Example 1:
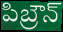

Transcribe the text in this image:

పిబ్రౌన్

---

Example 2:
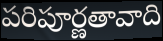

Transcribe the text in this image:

పరిపూర్ణతావాది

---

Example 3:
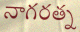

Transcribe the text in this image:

నాగరత్న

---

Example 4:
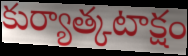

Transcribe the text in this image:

కుర్యాత్కటాక్షం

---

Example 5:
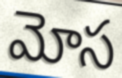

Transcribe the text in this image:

మోస